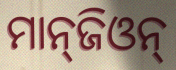
ମାନ୍‌ଜିଓନ୍